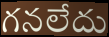
గనలేదు